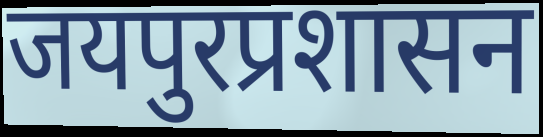
जयपुरप्रशासन